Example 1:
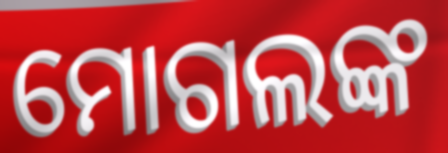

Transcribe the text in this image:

ମୋଗଲଙ୍କ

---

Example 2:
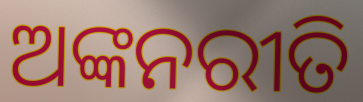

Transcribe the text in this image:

ଅଙ୍କନରୀତି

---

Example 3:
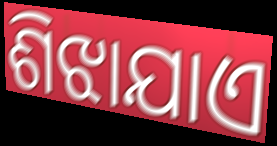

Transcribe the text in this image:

ଶିଝାଯାଏ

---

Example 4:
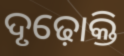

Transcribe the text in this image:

ଦୃଢ଼ୋକ୍ତି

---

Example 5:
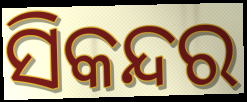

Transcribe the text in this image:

ସିକନ୍ଦର